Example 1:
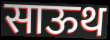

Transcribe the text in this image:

साऊथ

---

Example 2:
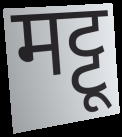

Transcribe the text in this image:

मट्टू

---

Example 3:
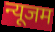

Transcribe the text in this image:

न्यूजम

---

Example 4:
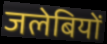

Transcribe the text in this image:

जलेबियों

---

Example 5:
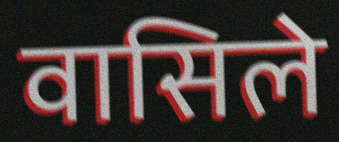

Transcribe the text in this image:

वासिले